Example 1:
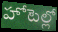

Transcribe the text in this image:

హోటెల్లో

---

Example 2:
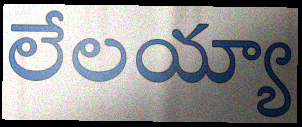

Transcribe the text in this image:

లేలయ్యా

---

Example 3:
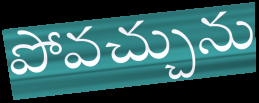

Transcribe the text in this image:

పోవచ్చును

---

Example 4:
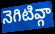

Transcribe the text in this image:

నెగిటివ్గా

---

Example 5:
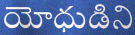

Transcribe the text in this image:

యోధుడిని